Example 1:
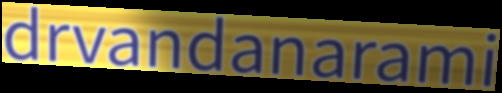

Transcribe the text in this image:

drvandanarami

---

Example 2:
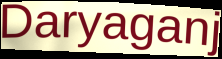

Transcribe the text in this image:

Daryaganj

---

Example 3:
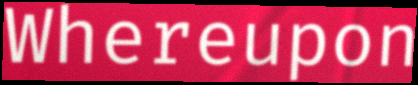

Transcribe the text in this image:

Whereupon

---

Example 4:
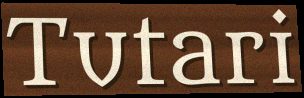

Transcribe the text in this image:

Tutari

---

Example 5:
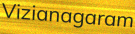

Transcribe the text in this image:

Vizianagaram